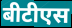
बीटीएस